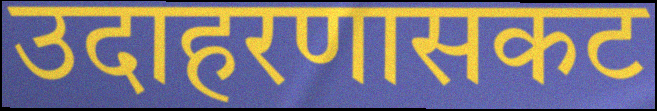
उदाहरणासकट